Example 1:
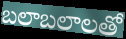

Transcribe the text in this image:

బలాబలాలతో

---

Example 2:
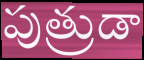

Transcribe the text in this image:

పుత్రుడా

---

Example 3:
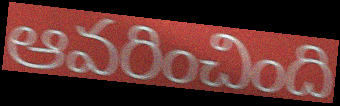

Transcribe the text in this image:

ఆవరించింది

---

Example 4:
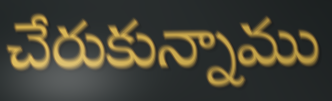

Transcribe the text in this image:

చేరుకున్నాము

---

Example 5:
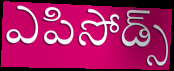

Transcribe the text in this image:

ఎపిసోడ్స్